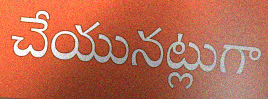
చేయునట్లుగా